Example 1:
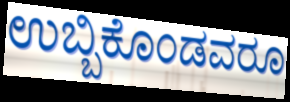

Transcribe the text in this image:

ಉಬ್ಬಿಕೊಂಡವರೂ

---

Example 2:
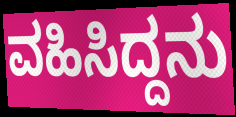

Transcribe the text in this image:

ವಹಿಸಿದ್ದನು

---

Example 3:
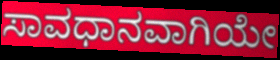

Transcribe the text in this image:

ಸಾವಧಾನವಾಗಿಯೇ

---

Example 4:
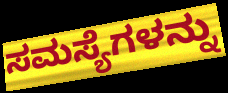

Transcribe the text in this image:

ಸಮಸ್ಯೆಗಳನ್ನು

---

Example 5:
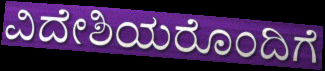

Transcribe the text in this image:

ವಿದೇಶಿಯರೊಂದಿಗೆ